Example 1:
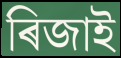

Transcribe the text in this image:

ৰিজাই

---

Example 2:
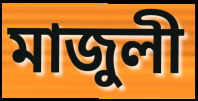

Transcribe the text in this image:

মাজুলী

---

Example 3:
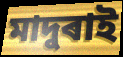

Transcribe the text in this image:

মাদুৰাই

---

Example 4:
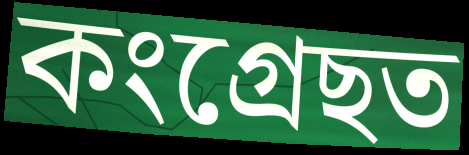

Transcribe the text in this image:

কংগ্ৰেছত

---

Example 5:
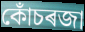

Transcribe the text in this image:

কোঁচৰজা